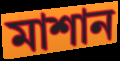
মাশান